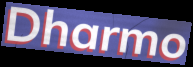
Dharmo